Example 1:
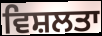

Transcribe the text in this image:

ਵਿਸ਼ਲਤਾ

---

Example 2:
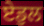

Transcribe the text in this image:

ਏਡੁਲ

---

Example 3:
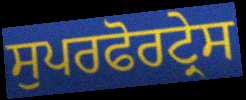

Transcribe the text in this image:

ਸੁਪਰਫੋਰਟ੍ਰੇਸ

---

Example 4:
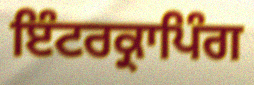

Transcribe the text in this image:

ਇੰਟਰਕ੍ਰਾਪਿੰਗ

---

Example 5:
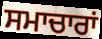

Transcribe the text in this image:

ਸਮਾਚਾਰਾਂ